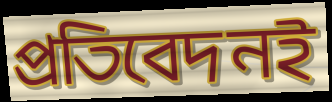
প্রতিবেদনই